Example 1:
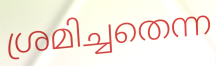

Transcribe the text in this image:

ശ്രമിച്ചതെന്ന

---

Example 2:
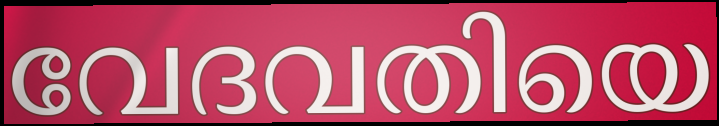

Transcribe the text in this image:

വേദവതിയെ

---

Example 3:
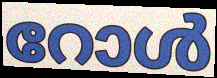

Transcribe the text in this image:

റോൾ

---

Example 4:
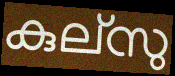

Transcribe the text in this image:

കുല്സു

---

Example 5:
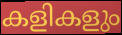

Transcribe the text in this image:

കളികളും